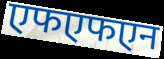
एफएफएन